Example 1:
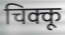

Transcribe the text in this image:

चिक्कू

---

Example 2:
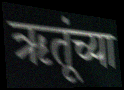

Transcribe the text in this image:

ऋतूंच्या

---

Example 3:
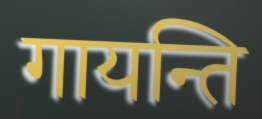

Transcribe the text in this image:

गायन्ति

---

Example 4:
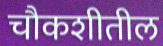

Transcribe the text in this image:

चौकशीतील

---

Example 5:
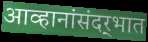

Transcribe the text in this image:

आव्हानांसंदर्भात